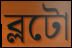
ব্লটো